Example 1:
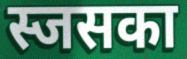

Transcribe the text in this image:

स्जसका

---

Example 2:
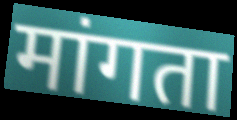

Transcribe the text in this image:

मांगता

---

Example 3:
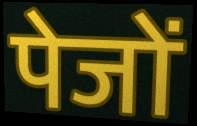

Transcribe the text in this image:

पेजों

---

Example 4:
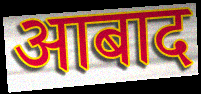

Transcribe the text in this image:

आबाद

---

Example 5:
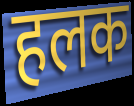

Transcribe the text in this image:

हलक